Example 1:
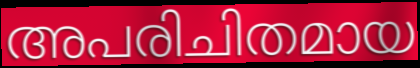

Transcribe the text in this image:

അപരിചിതമായ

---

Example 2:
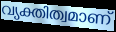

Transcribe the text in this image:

വ്യക്തിത്വമാണ്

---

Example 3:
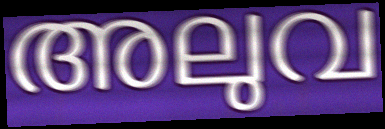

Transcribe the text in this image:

അലുവ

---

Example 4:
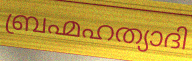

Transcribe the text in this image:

ബ്രഹ്മഹത്യാദി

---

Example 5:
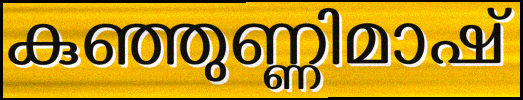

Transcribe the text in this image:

കുഞ്ഞുണ്ണിമാഷ്